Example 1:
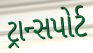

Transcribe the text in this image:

ટ્રાન્સપોર્ટ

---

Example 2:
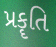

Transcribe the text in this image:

પ્રકૄતિ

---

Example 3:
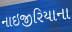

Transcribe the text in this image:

નાઇજીરિયાના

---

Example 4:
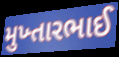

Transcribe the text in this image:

મુખ્તારભાઈ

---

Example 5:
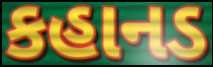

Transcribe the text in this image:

કહાનડ